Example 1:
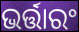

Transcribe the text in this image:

ଭର୍ତ୍ତାରଂ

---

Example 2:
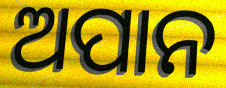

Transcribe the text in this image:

ଅପାନ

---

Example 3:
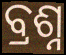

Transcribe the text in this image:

ବ୍ରଶ୍ନ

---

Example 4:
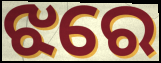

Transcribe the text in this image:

ଝରେ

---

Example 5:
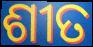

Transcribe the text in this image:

ଶୀତ